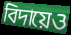
বিদায়েও